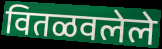
वितळवलेले